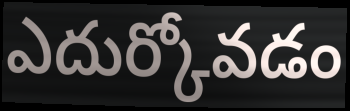
ఎదుర్కోవడం